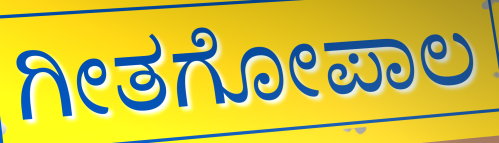
ಗೀತಗೋಪಾಲ